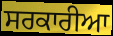
ਸਰਕਾਰੀਆ